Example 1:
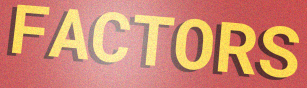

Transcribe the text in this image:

FACTORS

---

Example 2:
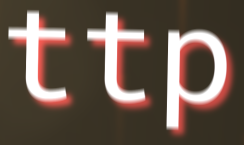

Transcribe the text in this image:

ttp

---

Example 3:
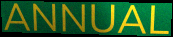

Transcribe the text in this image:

ANNUAL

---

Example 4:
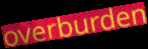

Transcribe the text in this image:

overburden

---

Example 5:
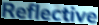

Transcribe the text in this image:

Reflective